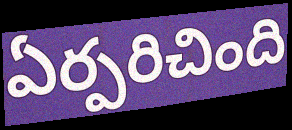
ఏర్పరిచింది